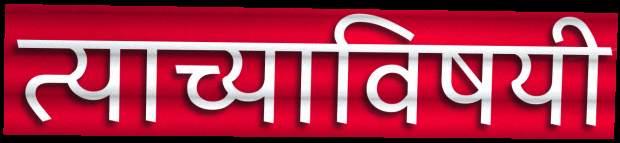
त्याच्याविषयी